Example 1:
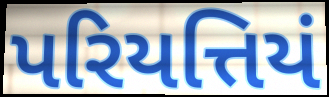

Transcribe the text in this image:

પરિયત્તિયં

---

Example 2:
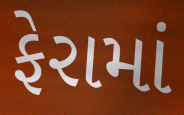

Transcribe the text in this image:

ફેરામાં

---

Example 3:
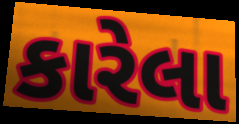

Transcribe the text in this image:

કારેલા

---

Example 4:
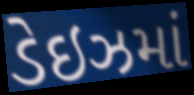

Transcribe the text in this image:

ડેઇઝમાં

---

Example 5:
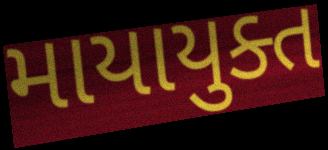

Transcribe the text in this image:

માયાયુક્ત